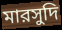
মারসুদি